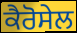
ਕੈਰੋਸੇਲ